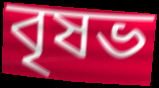
বৃষভ